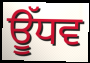
ਊੱਧਵ